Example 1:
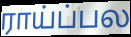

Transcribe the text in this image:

ராய்ப்பல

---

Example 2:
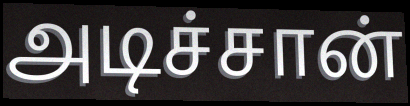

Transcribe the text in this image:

அடிச்சான்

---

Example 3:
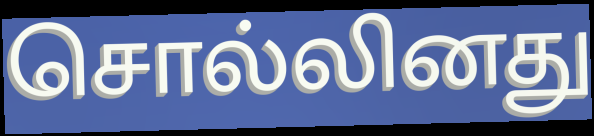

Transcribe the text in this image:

சொல்லினது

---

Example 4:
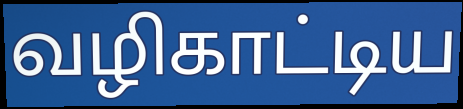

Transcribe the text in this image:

வழிகாட்டிய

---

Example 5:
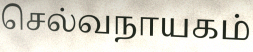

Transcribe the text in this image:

செல்வநாயகம்